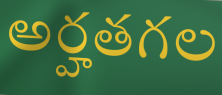
అర్హతగల